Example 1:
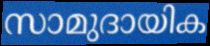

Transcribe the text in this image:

സാമുദായിക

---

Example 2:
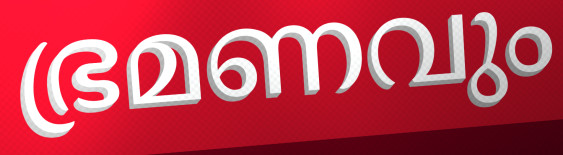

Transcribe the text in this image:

ഭ്രമണവും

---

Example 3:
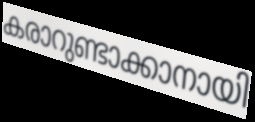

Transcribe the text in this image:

കരാറുണ്ടാക്കാനായി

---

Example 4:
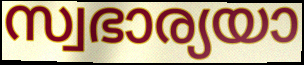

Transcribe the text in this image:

സ്വഭാര്യയാ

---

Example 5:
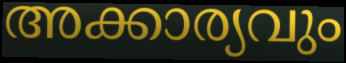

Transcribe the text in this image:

അക്കാര്യവും